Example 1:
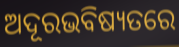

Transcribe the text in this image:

ଅଦୂରଭବିଷ୍ୟତରେ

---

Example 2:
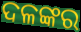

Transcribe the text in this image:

ଦଳଙ୍କର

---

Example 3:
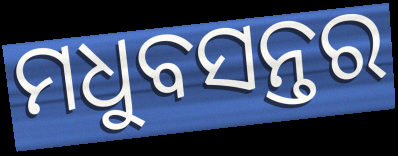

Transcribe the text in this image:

ମଧୁବସନ୍ତର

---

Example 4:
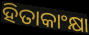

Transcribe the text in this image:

ହିତାକାଂକ୍ଷା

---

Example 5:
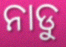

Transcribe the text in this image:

ନାଡୁ